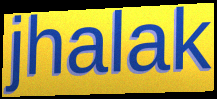
jhalak